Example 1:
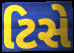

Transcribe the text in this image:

ટિસે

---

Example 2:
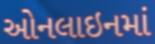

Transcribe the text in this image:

ઓનલાઇનમાં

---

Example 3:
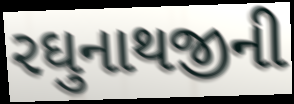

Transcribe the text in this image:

રઘુનાથજીની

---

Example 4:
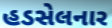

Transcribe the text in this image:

હડસેલનાર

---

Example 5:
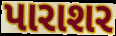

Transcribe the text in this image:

પારાશર